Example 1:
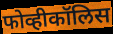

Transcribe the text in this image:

फोव्हीकॉलिस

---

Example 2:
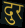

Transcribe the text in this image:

दुर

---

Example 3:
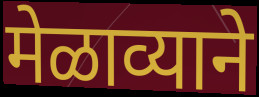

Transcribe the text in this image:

मेळाव्याने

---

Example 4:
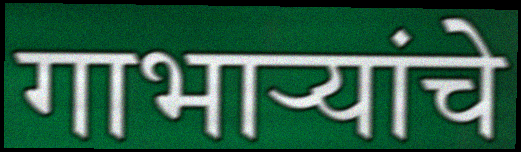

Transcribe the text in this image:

गाभाऱ्यांचे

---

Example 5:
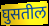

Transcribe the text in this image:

घुसतील